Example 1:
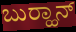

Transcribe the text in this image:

ಬುರ‍್ಹಾನ್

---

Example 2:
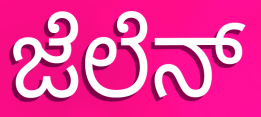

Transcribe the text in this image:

ಜೆಲೆನ್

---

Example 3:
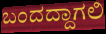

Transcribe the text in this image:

ಬಂದದ್ದಾಗಲಿ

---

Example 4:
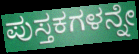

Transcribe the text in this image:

ಪುಸ್ತಕಗಳನ್ನೇ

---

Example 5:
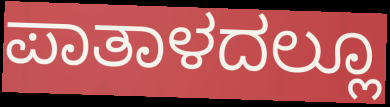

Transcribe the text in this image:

ಪಾತಾಳದಲ್ಲೂ